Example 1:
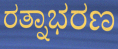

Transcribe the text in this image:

ರತ್ನಾಭರಣ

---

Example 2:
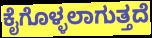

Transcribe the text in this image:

ಕೈಗೊಳ್ಳಲಾಗುತ್ತದೆ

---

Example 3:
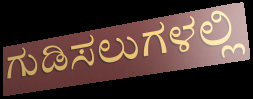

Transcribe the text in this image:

ಗುಡಿಸಲುಗಳಲ್ಲಿ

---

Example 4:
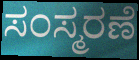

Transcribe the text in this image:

ಸಂಸ್ಮರಣೆ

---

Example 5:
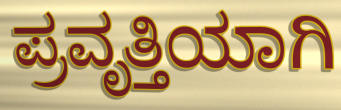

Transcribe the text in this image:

ಪ್ರವೃತ್ತಿಯಾಗಿ